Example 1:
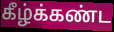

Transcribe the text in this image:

கீழ்க்கண்ட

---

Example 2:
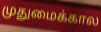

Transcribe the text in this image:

முதுமைக்கால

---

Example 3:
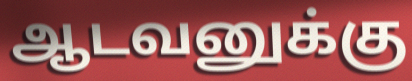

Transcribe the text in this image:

ஆடவனுக்கு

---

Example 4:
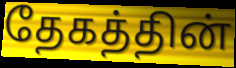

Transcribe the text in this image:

தேகத்தின்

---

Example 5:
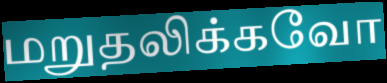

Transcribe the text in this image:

மறுதலிக்கவோ